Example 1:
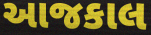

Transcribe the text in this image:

આજકાલ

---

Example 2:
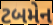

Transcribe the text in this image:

ટબમેન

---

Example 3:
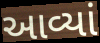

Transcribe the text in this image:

આવ્યાં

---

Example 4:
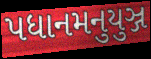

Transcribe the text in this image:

પધાનમનુયુઞ્જ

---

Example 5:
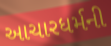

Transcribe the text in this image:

આચારધર્મની